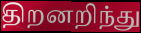
திறனறிந்து